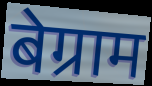
बेग्राम